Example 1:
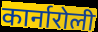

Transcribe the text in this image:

कार्नारोली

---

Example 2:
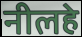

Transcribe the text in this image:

नीलहे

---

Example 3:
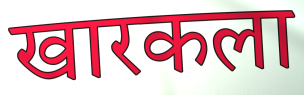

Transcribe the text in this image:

खारकला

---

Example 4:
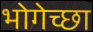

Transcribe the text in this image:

भोगेच्छा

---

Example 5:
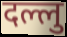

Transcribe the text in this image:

दल्लु